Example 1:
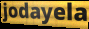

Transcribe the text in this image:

jodayela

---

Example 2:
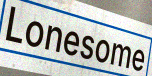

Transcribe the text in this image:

Lonesome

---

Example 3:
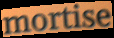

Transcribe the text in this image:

mortise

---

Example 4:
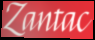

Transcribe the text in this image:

Zantac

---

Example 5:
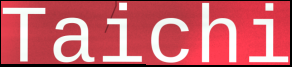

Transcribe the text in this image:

Taichi